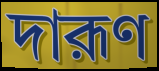
দারূণ